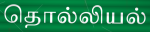
தொல்லியல்